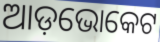
ଆଡ଼ଭୋକେଟ